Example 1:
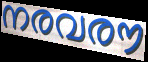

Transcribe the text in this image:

നരവരൗ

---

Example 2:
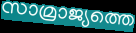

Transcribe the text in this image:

സാമ്രാജ്യത്തെ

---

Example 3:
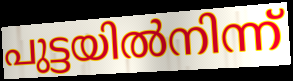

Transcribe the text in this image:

പുട്ടയിൽനിന്ന്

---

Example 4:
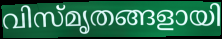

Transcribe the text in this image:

വിസ്മൃതങ്ങളായി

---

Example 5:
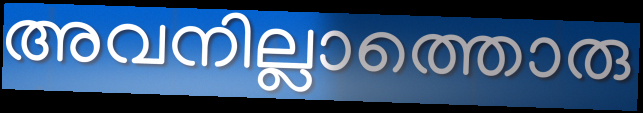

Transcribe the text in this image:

അവനില്ലാത്തൊരു